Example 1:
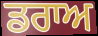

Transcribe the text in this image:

ਡਰਾਅ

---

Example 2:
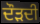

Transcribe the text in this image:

ਦੌੜਦੀ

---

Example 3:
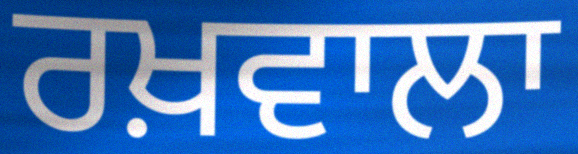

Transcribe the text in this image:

ਰਖ਼ਵਾਲਾ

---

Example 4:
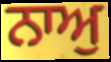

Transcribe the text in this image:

ਨਾਅੁ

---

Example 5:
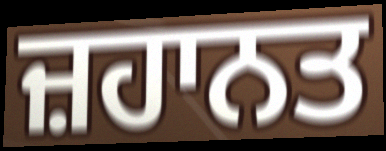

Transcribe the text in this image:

ਜ਼ਹਾਨਤ